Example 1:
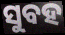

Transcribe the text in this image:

ସୁବହ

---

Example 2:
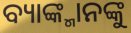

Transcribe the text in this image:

ବ୍ୟାଙ୍କ୍ମାନଙ୍କୁ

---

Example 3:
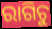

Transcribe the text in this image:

ରାଗିଚୁ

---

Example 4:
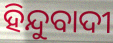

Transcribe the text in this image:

ହିନ୍ଦୁବାଦୀ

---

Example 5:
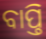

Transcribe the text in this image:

ବାପ୍ତି